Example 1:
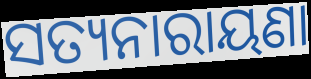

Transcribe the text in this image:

ସତ୍ୟନାରାୟଣା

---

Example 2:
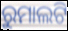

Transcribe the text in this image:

ରୁମାଲଟି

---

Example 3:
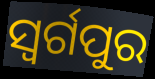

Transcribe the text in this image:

ସ୍ଵର୍ଗପୁର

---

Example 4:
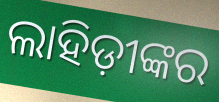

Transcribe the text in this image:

ଲାହିଡ଼ୀଙ୍କର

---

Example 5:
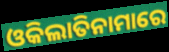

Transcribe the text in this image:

ଓକିଲାତିନାମାରେ